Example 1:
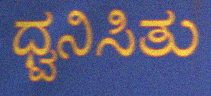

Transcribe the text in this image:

ಧ್ವನಿಸಿತು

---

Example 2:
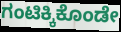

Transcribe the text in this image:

ಗಂಟಿಕ್ಕಿಕೊಂಡೇ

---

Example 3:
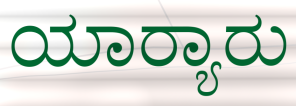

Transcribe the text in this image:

ಯಾರ್‍ಯಾರು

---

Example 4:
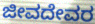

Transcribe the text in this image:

ಜೀವದೇವರ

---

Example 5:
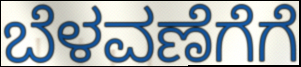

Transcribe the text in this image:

ಬೆಳವಣೆಗೆಗೆ